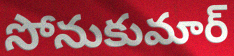
సోనుకుమార్